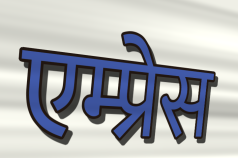
एम्प्रेस